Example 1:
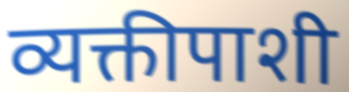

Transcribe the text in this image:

व्यक्तीपाशी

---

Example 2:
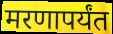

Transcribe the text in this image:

मरणापर्यंत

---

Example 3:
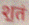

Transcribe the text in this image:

श॒तं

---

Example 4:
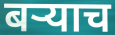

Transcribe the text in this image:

बऱ्याच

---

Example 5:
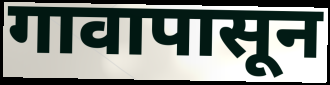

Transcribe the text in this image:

गावापासून